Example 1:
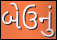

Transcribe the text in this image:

બેઉનું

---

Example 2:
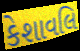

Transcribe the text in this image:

કેશાવલિ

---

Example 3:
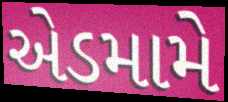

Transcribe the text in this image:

એડમામે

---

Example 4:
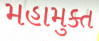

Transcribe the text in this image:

મહામુક્ત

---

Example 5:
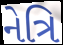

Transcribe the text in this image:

નેત્રિ